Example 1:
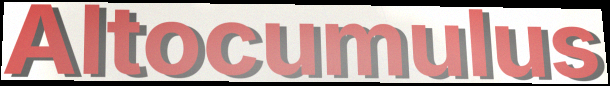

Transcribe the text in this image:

Altocumulus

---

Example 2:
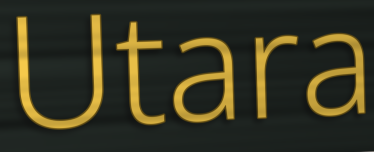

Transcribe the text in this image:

Utara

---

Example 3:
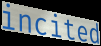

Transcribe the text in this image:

incited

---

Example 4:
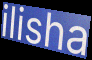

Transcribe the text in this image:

ilisha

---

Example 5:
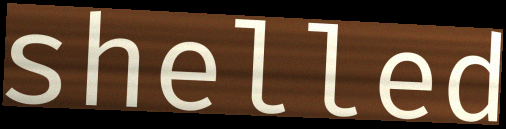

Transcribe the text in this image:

shelled